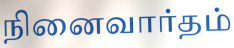
நினைவார்தம்